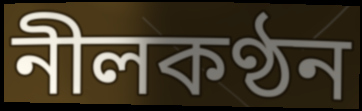
নীলকণ্ঠন